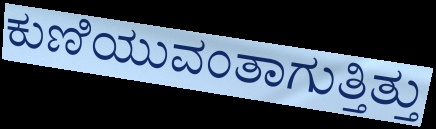
ಕುಣಿಯುವಂತಾಗುತ್ತಿತ್ತು